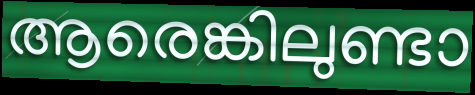
ആരെങ്കിലുണ്ടാ